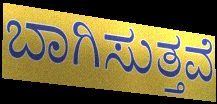
ಬಾಗಿಸುತ್ತವೆ